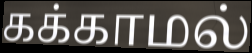
கக்காமல்